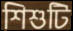
শিশুটি